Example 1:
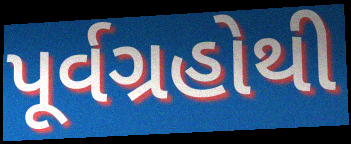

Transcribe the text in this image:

પૂર્વગ્રહોથી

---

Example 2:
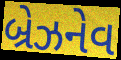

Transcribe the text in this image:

બ્રેઝનેવ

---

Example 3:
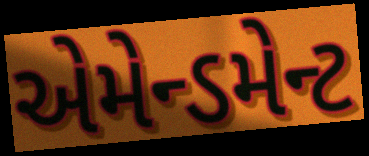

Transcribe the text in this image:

એમેન્ડમેન્ટ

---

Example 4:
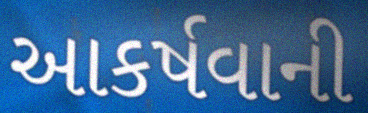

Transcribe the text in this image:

આકર્ષવાની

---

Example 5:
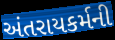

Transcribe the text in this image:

અંતરાયકર્મની